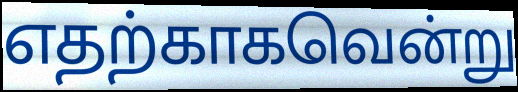
எதற்காகவென்று